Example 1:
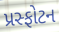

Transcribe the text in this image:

પ્રસ્ફોટન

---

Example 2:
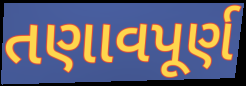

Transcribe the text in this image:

તણાવપૂર્ણ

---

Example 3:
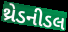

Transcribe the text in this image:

થ્રેડનીડલ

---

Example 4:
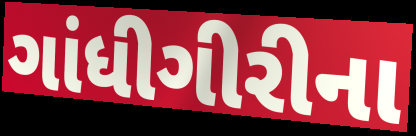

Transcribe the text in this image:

ગાંધીગીરીના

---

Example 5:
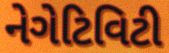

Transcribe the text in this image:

નેગેટિવિટી